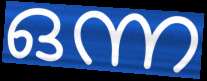
ഒന്ന